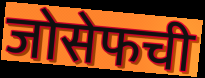
जोसेफची